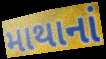
માથાનાં